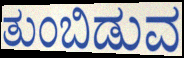
ತುಂಬಿಡುವ